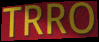
TRRO